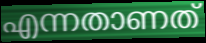
എന്നതാണത്